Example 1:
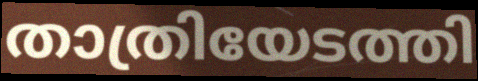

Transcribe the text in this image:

താത്രിയേടത്തി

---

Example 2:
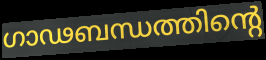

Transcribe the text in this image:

ഗാഢബന്ധത്തിന്റെ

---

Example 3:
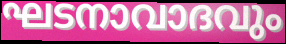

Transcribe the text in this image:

ഘടനാവാദവും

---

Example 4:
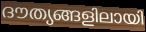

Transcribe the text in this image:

ദൗത്യങ്ങളിലായി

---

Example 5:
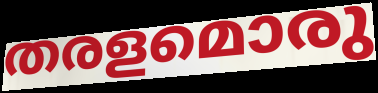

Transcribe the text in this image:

തരളമൊരു